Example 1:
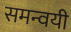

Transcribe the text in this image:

समन्वयी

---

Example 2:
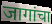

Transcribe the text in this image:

जागांचा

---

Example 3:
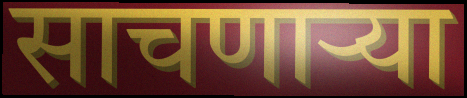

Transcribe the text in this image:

साचणार्‍या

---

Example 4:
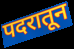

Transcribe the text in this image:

पदरातून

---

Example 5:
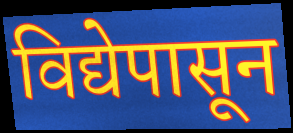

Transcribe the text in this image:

विद्येपासून